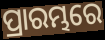
ପ୍ରାରମ୍ଭରେ